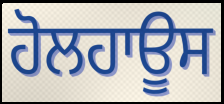
ਹੋਲਹਾਊਸ